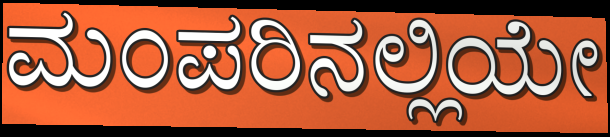
ಮಂಪರಿನಲ್ಲಿಯೇ